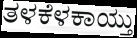
ತಳಕೆಳಕಾಯ್ತು